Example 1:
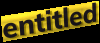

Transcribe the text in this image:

entitled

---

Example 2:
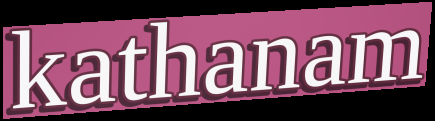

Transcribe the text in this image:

kathanam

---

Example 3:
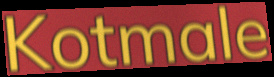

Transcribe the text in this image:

Kotmale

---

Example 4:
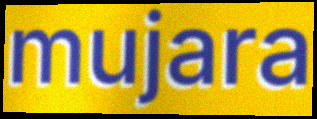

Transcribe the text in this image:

mujara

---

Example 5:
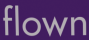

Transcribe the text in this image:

flown